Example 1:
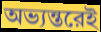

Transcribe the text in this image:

অভ্যন্তরেই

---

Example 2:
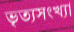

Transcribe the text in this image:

ভৃত্যসংখ্যা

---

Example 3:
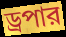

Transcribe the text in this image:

ড্রপার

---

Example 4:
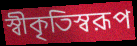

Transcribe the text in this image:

স্বীকৃতিস্বরূপ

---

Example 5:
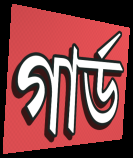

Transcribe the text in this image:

গার্ড